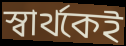
স্বার্থকেই